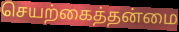
செயற்கைத்தன்மை